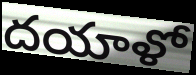
దయాళో